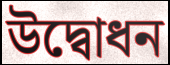
উদ্বোধন